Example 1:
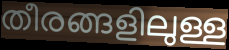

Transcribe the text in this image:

തീരങ്ങളിലുള്ള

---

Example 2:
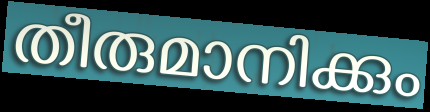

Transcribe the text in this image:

തീരുമാനിക്കും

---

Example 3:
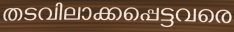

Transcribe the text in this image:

തടവിലാക്കപ്പെട്ടവരെ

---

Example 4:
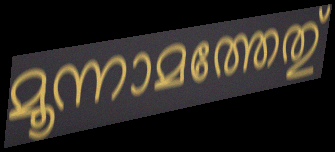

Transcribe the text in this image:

മൂന്നാമത്തേതു്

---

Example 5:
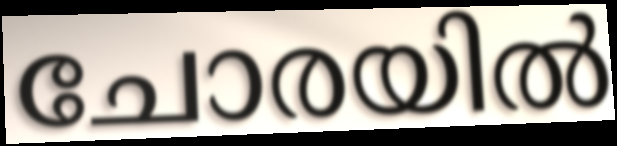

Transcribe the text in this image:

ചോരയിൽ